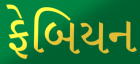
ફેબિયન